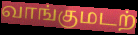
வாங்குமடற்